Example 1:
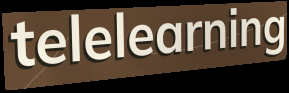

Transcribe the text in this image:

telelearning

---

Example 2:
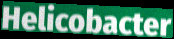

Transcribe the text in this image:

Helicobacter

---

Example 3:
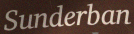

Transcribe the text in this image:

Sunderban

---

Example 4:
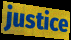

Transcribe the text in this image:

justice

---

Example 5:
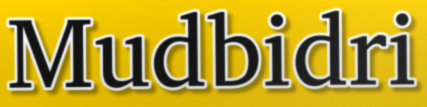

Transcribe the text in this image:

Mudbidri